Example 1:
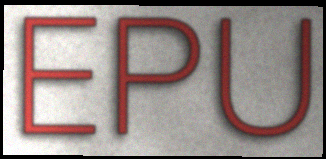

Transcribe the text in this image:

EPU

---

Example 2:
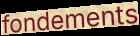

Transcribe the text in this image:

fondements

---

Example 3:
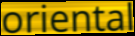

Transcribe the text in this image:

oriental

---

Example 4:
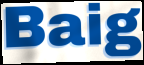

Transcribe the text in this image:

Baig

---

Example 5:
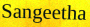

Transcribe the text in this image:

Sangeetha